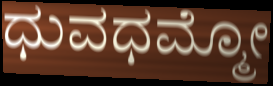
ಧುವಧಮ್ಮೋ